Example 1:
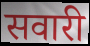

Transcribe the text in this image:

सवारी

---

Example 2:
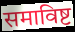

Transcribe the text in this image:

समाविष्ट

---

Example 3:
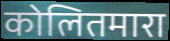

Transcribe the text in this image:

कोलितमारा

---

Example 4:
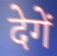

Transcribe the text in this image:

देगें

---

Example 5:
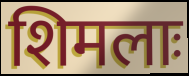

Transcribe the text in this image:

शिमलाः